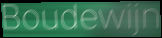
Boudewijn